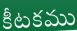
కీటకము